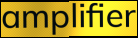
amplifier